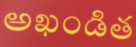
అఖండిత